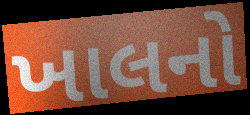
ખાલનો